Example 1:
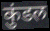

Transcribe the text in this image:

कुंडल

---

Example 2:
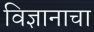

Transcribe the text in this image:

विज्ञानाचा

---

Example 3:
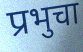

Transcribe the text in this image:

प्रभुचा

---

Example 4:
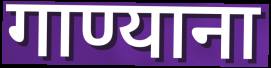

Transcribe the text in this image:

गाण्याना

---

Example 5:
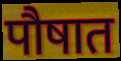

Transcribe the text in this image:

पौषात